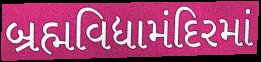
બ્રહ્મવિદ્યામંદિરમાં